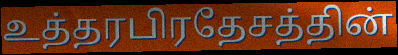
உத்தரபிரதேசத்தின்